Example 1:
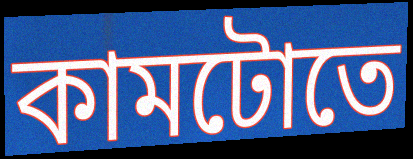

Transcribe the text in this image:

কামটোতে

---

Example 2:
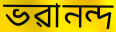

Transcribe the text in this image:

ভৱানন্দ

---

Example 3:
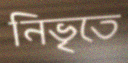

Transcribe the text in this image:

নিভৃতে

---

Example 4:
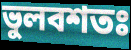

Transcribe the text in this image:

ভুলবশতঃ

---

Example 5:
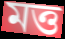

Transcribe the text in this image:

মত্ত